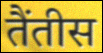
तैंतीस